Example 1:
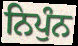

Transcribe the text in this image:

ਨਿਪੁੰਨ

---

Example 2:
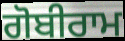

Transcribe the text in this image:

ਗੋਬੀਰਾਮ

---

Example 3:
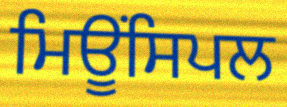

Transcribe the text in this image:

ਮਿਊਂਸਿਪਲ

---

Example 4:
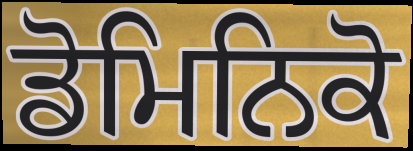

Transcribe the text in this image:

ਡੋਮਿਨਿਕੋ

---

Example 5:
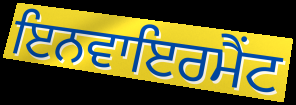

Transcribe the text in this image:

ਇਨਵਾਇਰਮੈਂਟ